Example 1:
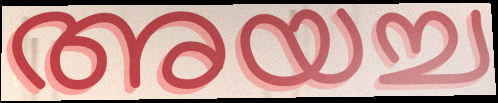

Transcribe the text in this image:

അയച്ച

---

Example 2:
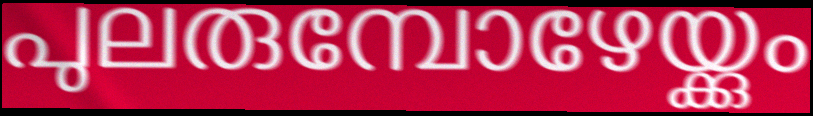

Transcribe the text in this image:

പുലരുമ്പോഴേയ്ക്കും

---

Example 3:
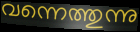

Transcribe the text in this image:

വന്നെത്തുന്നു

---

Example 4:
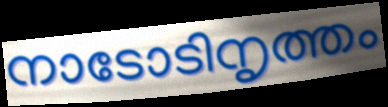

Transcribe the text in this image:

നാടോടിനൃത്തം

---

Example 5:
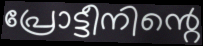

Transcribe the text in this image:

പ്രോട്ടീനിന്റെ